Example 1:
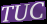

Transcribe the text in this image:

TUC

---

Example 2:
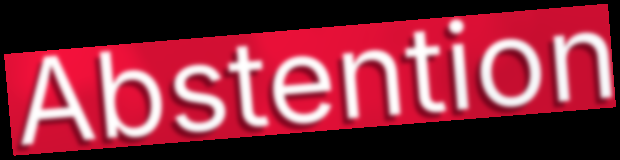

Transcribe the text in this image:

Abstention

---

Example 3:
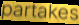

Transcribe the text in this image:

partakes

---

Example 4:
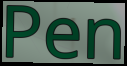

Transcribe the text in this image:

Pen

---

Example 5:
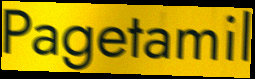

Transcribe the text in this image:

Pagetamil